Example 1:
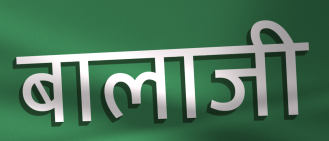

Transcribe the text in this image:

बालाजी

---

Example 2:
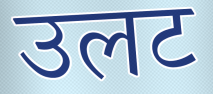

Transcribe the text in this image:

उलट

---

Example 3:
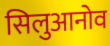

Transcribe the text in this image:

सिलुआनोव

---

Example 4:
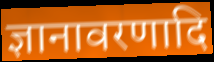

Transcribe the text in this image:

ज्ञानावरणादि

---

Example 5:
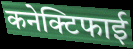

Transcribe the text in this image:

कनेक्टिफाई